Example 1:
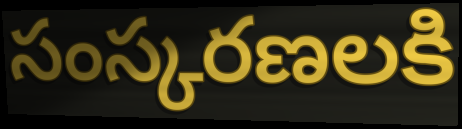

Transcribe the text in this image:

సంస్కరణలకి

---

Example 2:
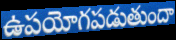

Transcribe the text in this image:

ఉపయోగపడుతుందా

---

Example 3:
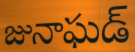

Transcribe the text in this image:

జునాఘడ్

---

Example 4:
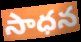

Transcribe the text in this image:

సాధన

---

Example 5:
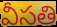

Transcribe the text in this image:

వీసతి